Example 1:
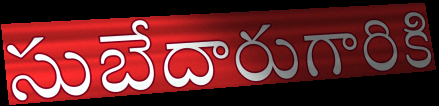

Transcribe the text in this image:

సుబేదారుగారికి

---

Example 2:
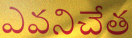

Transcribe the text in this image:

ఎవనిచేత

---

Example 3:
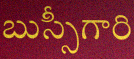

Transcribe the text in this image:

బుస్సీగారి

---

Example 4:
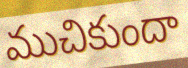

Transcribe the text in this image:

ముచికుందా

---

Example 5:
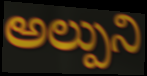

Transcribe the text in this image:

అల్పుని